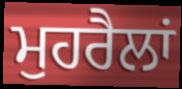
ਮੁਹਰੈਲਾਂ